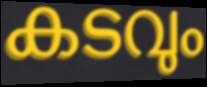
കടവും